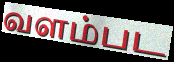
வளம்பட